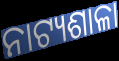
ନାଟ୍ୟଶାଳା